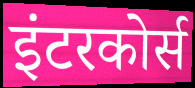
इंटरकोर्स